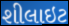
શીલાઇટ